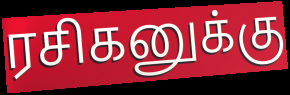
ரசிகனுக்கு